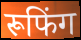
रूफिंग